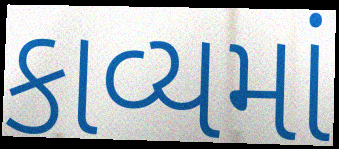
કાવ્યમાં